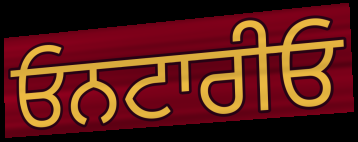
ਓਨਟਾਰੀਓ